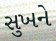
સુખને